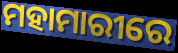
ମହାମାରୀରେ